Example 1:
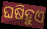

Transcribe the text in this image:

ଘଷିହୁଏ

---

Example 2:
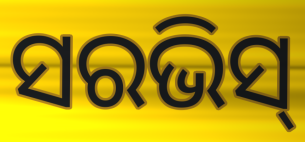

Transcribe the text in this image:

ସରଭିସ୍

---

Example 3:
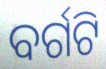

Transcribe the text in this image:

ବର୍ଗଟି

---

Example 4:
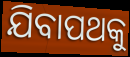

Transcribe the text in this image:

ଯିବାପଥକୁ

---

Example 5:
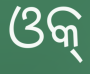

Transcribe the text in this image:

ଓକ୍